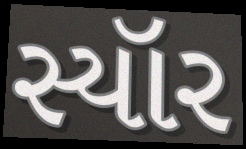
સ્યૉર